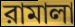
রামালা